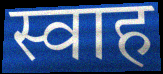
स्वाह